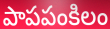
పాపపంకిలం